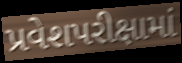
પ્રવેશપરીક્ષામાં